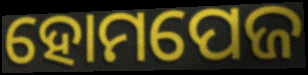
ହୋମପେଜ